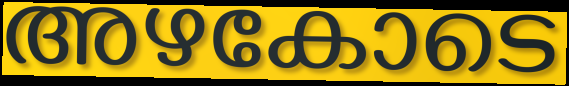
അഴകോടെ